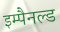
इम्पैनल्ड